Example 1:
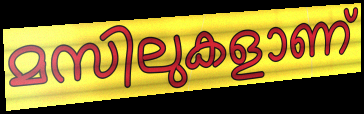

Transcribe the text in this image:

മസിലുകളാണ്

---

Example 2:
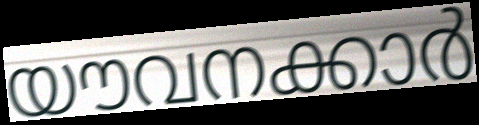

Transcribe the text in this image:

യൗവനക്കാർ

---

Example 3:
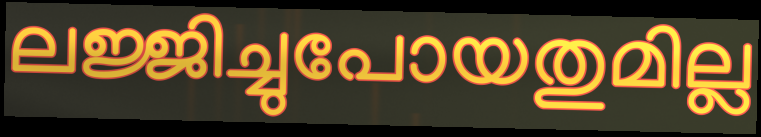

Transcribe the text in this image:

ലജ്ജിച്ചുപോയതുമില്ല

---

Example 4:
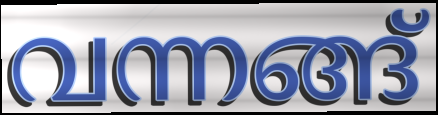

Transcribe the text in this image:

വന്നങ്ങ്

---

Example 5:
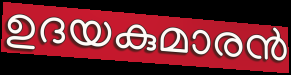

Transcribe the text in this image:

ഉദയകുമാരൻ